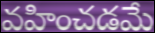
వహించడమే